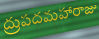
ద్రుపదమహారాజు